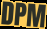
DPM